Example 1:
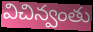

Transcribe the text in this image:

విచిన్వంతు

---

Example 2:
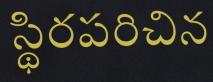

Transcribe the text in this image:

స్థిరపరిచిన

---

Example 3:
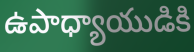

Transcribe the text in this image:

ఉపాధ్యాయుడికి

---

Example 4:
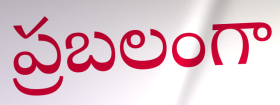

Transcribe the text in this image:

ప్రబలంగా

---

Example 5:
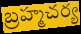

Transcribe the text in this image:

బ్రహ్మచర్య